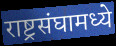
राष्ट्रसंघामध्ये